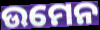
ଉମେନ